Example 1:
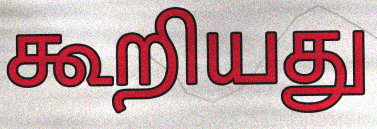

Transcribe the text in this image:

கூறியது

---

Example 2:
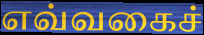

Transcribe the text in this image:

எவ்வகைச்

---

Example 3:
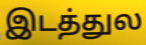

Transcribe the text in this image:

இடத்துல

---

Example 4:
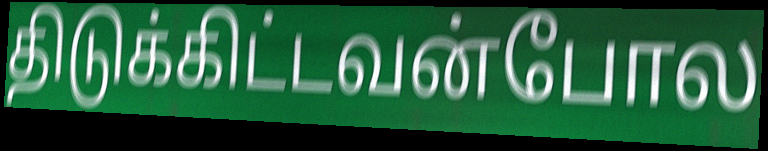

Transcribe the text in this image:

திடுக்கிட்டவன்போல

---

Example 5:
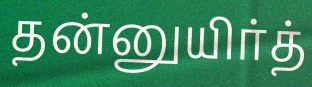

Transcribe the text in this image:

தன்னுயிர்த்